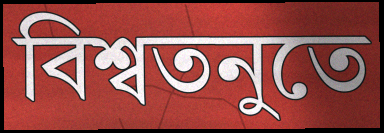
বিশ্বতনুতে